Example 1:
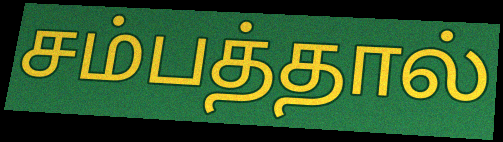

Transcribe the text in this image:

சம்பத்தால்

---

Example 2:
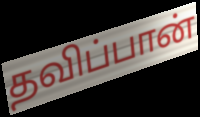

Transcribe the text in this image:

தவிப்பான்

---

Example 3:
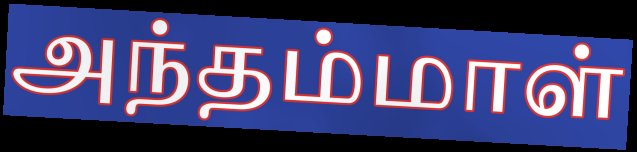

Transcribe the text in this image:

அந்தம்மாள்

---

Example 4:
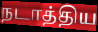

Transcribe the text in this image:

நடாத்திய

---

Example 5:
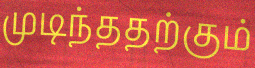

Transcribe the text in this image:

முடிந்ததற்கும்